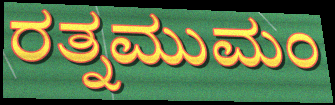
ರತ್ನಮುಮಂ